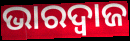
ଭାରଦ୍ୱାଜ